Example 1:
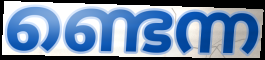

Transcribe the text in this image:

ണ്ടെന്ന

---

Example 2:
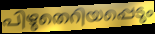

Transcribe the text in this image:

പിഴുതെറിയപ്പെടും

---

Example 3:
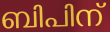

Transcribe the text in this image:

ബിപിന്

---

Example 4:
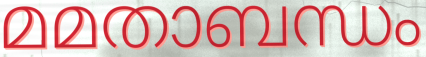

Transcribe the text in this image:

മമതാബന്ധം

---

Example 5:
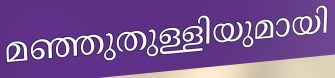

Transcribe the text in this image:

മഞ്ഞുതുള്ളിയുമായി